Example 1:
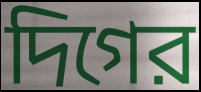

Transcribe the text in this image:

দিগের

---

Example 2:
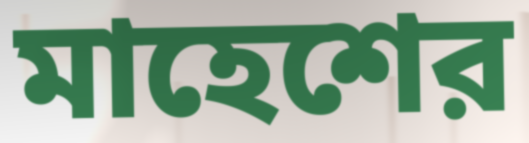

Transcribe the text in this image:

মাহেশের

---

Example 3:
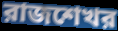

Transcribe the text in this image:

রাজশেখর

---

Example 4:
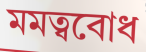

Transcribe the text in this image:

মমত্ববোধ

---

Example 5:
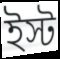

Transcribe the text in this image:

ইস্ট